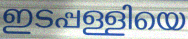
ഇടപ്പള്ളിയെ